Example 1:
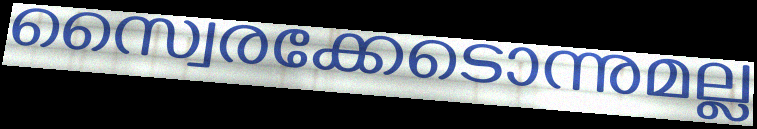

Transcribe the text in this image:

സ്വൈരക്കേടൊന്നുമല്ല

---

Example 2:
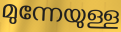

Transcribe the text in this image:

മുന്നേയുള്ള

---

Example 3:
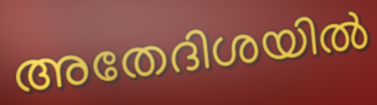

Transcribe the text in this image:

അതേദിശയിൽ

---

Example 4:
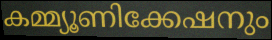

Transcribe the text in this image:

കമ്മ്യൂണിക്കേഷനും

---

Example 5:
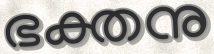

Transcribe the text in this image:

ഭക്തനു